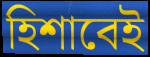
হিশাবেই